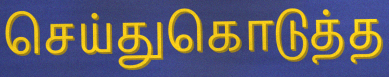
செய்துகொடுத்த